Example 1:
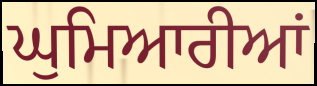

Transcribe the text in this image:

ਘੁਮਿਆਰੀਆਂ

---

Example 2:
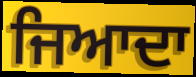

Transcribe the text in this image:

ਜਿਆਦਾ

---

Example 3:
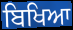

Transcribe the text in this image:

ਬਿਖਿਆ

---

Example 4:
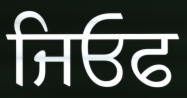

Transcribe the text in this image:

ਜਿਓਫ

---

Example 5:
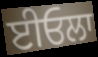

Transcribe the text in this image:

ਈਓਲਾ